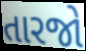
તારજો